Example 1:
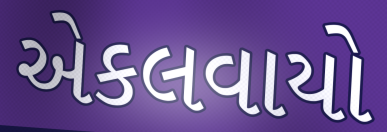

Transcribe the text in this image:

એકલવાયો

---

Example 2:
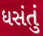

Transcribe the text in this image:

ધસંતું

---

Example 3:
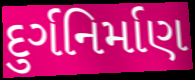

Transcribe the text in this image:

દુર્ગનિર્માણ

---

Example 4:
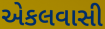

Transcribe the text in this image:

એકલવાસી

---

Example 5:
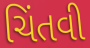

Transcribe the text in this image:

ચિંતવી